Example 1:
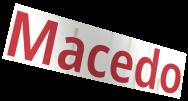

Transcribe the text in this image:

Macedo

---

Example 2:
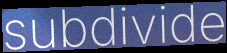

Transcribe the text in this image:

subdivide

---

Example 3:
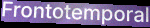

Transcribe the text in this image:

Frontotemporal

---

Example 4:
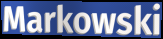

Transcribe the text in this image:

Markowski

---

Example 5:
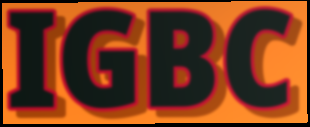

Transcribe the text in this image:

IGBC